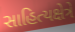
સાહિત્યક્ષેત્રે